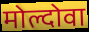
मोल्दोवा